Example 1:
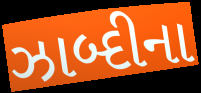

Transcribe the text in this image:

ઝાબ્દીના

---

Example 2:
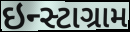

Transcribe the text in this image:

ઇન્સ્ટાગ્રામ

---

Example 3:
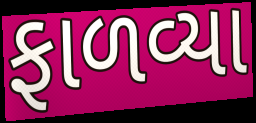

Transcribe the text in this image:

ફાળવ્યા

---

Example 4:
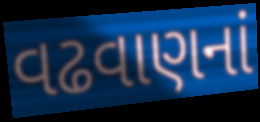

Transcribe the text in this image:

વઢવાણનાં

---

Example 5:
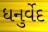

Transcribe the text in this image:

ધનુર્વેદ